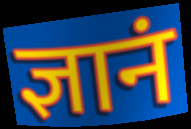
ज्ञानं